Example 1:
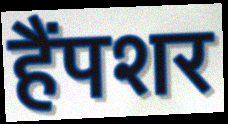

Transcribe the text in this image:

हैंपशर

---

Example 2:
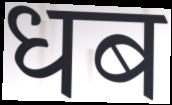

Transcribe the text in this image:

धब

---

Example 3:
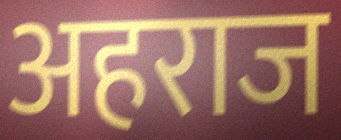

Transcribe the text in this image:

अहराज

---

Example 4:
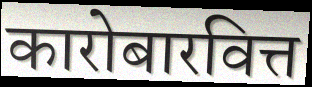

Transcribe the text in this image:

कारोबारवित्त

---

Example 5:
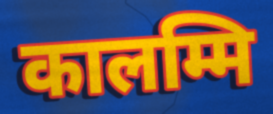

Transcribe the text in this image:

कालम्मि